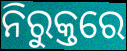
ନିରୁକ୍ତରେ